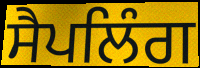
ਸੈਪਲਿੰਗ